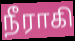
நீராகி